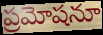
ప్రమోషనూ